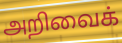
அறிவைக்